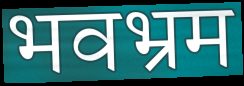
भवभ्रम